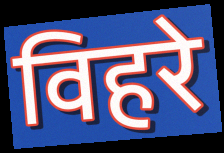
विहरे